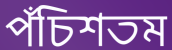
পঁচিশতম